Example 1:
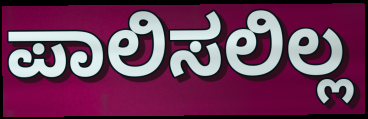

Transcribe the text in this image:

ಪಾಲಿಸಲಿಲ್ಲ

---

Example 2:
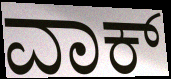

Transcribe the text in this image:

ವಾಕ್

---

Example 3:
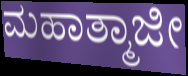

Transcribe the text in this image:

ಮಹಾತ್ಮಾಜೀ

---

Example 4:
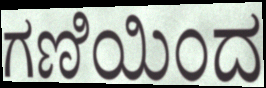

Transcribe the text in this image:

ಗಣಿಯಿಂದ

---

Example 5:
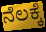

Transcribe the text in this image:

ನೆಲಕ್ಕೆ